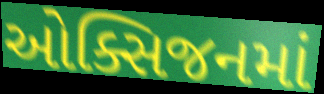
ઓક્સિજનમાં